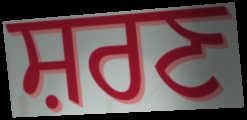
ਸ਼ਰਣ